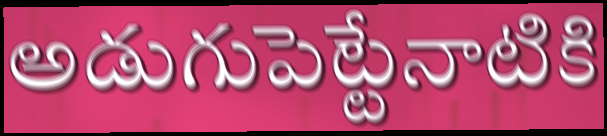
అడుగుపెట్టేనాటికి